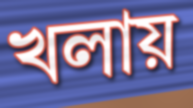
খলায়